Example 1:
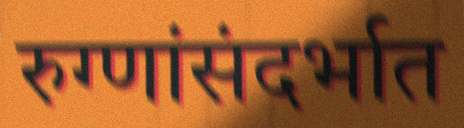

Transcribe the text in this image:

रुग्णांसंदर्भात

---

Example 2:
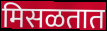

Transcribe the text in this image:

मिसळतात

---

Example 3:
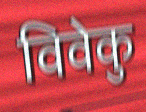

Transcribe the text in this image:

विवेकु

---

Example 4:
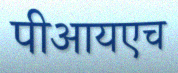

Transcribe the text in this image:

पीआयएच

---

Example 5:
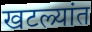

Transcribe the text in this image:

खटल्यांत